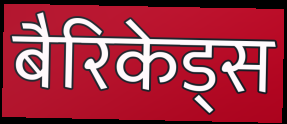
बैरिकेड्स